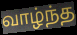
வாழ்ந்த